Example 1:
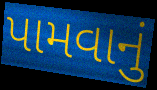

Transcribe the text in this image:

પામવાનું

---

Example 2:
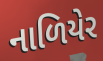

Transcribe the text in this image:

નાળિયેર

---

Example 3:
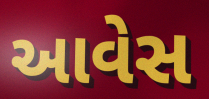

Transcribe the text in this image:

આવેસ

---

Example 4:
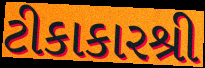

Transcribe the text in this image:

ટીકાકારશ્રી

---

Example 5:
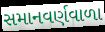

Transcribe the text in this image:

સમાનવર્ણવાળા